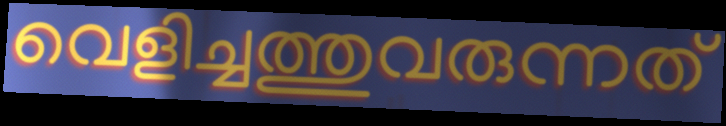
വെളിച്ചത്തുവരുന്നത്